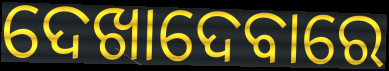
ଦେଖାଦେବାରେ